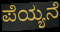
ಪೆಯ್ಯನೆ